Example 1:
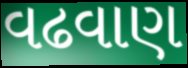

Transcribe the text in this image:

વઢવાણ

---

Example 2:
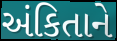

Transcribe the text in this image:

અંકિતાને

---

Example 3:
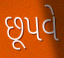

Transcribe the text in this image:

છૂપવે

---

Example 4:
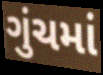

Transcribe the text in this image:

ગુંચમાં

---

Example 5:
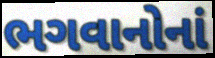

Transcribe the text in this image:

ભગવાનોનાં